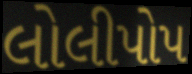
લોલીપોપ